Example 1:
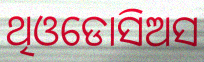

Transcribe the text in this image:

ଥିଓଡୋସିଅସ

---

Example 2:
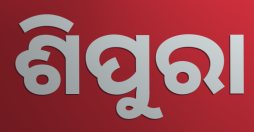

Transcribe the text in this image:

ଶିପୁରା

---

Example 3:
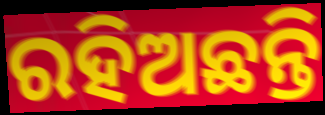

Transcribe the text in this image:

ରହିଅଛନ୍ତି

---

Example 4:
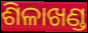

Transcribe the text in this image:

ଶିଳାଖଣ୍ଡ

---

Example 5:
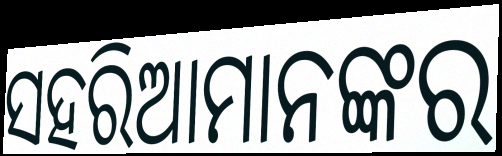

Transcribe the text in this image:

ସହରିଆମାନଙ୍କର